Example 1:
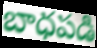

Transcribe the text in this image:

బాధపడి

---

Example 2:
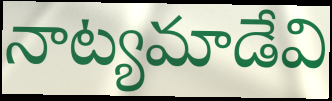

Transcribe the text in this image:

నాట్యమాడేవి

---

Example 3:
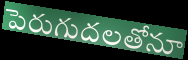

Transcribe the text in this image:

పెరుగుదలతోనూ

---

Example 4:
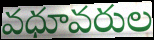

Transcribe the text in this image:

వధూవరుల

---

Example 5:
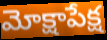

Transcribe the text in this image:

మోక్షాపేక్ష